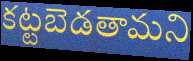
కట్టబెడతామని